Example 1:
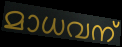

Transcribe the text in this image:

മാധവന്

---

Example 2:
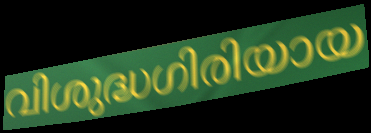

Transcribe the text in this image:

വിശുദ്ധഗിരിയായ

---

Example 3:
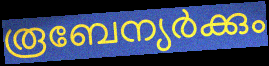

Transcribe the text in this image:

രൂബേന്യർക്കും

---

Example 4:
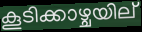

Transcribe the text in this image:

കൂടിക്കാഴ്ചയില്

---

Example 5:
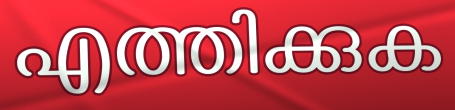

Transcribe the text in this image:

എത്തിക്കുക